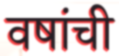
वषांची